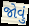
જોવું